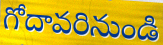
గోదావరినుండి